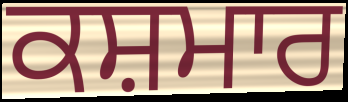
ਕਸ਼ਮਾਰ